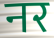
नर